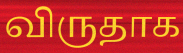
விருதாக